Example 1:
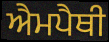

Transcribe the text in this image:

ਐਮਪੈਥੀ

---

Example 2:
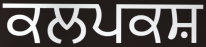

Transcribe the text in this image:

ਕਲਪਕਸ਼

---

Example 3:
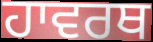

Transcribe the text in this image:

ਹਾਵਰਥ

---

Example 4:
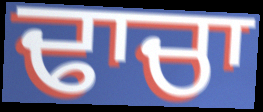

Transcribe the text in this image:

ਢਾਚਾ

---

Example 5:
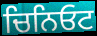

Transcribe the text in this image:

ਚਿਨਿਓਟ